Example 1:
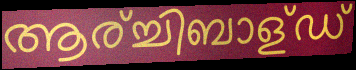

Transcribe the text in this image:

ആര്ച്ചിബാള്ഡ്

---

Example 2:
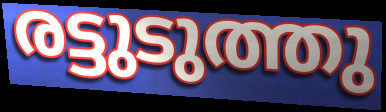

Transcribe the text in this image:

രട്ടുടുത്തു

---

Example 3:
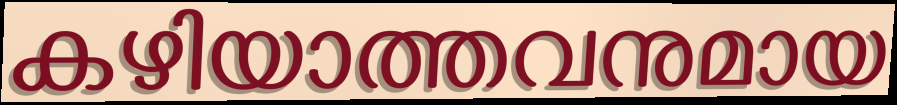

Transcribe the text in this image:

കഴിയാത്തവനുമായ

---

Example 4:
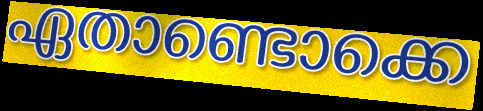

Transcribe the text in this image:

ഏതാണ്ടൊക്കെ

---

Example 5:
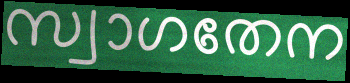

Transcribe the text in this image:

സ്വാഗതേന